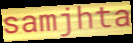
samjhta